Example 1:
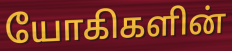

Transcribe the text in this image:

யோகிகளின்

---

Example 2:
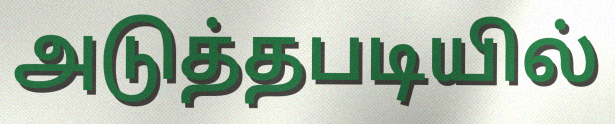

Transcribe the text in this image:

அடுத்தபடியில்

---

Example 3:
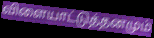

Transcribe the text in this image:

விளையாட்டுத்தனமும்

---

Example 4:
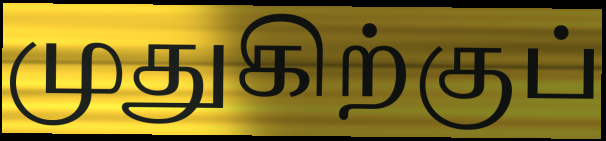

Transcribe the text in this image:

முதுகிற்குப்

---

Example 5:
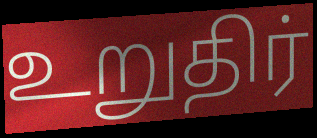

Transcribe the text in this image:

உறுதிர்